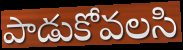
పాడుకోవలసి